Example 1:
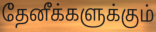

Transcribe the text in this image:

தேனீக்களுக்கும்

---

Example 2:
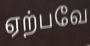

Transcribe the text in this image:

ஏற்பவே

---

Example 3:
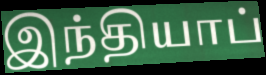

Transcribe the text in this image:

இந்தியாப்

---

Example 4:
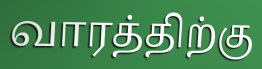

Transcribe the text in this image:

வாரத்திற்கு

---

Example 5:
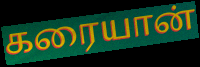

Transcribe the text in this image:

கரையான்